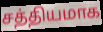
சத்தியமாக